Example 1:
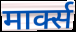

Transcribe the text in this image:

मार्क्स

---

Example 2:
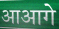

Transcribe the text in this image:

आआगे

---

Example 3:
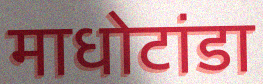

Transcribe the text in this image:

माधोटांडा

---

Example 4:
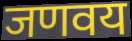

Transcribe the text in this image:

जणवय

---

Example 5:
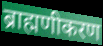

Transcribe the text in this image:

ब्राह्मणीकरण